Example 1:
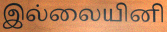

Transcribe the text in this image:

இல்லையினி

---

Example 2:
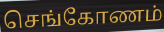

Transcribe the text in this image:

செங்கோணம்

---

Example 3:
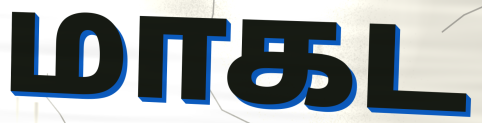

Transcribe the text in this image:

மாகட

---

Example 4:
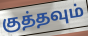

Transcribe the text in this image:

குத்தவும்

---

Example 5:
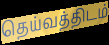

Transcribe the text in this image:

தெய்வத்திடம்